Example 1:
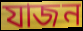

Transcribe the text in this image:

যাজন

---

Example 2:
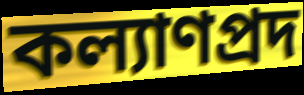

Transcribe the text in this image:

কল্যাণপ্রদ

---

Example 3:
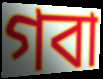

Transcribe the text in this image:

গবা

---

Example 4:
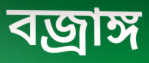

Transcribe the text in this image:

বজ্রাঙ্গ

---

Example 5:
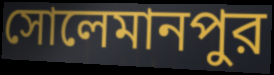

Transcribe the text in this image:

সোলেমানপুর